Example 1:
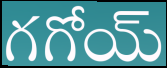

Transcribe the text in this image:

గగోయ్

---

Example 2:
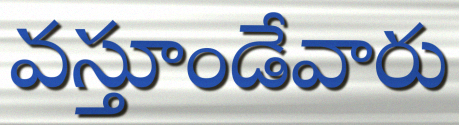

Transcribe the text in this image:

వస్తూండేవారు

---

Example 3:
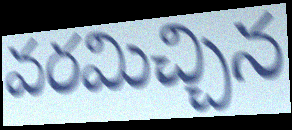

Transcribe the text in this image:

వరమిచ్చిన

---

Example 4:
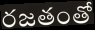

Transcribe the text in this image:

రజతంతో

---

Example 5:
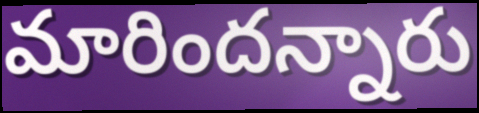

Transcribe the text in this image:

మారిందన్నారు